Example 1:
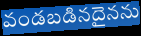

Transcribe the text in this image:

వండబడినదైనను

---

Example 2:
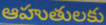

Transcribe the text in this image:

ఆహుతులకు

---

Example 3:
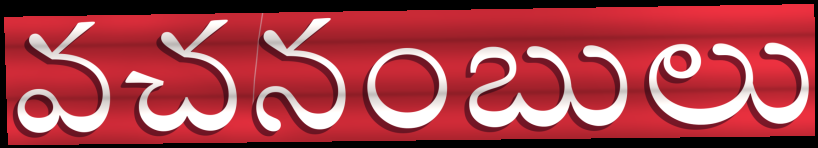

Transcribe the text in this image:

వచనంబులు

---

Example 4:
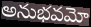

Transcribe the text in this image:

అనుభవమో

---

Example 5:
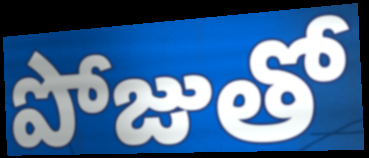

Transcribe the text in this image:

పోజుతో